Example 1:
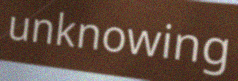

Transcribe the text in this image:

unknowing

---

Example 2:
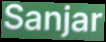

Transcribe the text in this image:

Sanjar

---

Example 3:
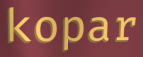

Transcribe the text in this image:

kopar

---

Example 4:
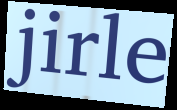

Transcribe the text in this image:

jirle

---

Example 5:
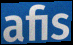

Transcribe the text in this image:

afis